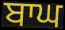
ਬਾਘ